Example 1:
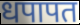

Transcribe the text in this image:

धपापत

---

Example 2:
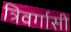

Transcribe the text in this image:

त्रिवर्गासी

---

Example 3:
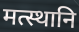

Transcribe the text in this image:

मत्स्थानि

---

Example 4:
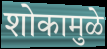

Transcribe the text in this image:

शोकामुळे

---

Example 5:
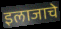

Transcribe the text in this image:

इलाजाचे